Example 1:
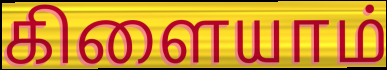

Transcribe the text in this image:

கிளையாம்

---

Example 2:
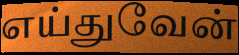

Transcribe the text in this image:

எய்துவேன்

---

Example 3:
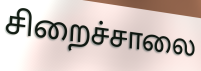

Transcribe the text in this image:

சிறைச்சாலை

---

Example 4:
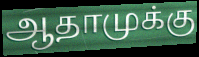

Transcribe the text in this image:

ஆதாமுக்கு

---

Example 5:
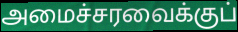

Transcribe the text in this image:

அமைச்சரவைக்குப்